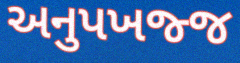
અનુપખજ્જ